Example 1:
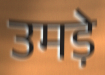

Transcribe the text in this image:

उमड़े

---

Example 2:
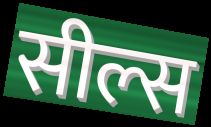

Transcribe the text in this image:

सील्स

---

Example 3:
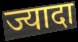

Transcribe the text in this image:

ज्यादा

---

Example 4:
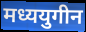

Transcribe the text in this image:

मध्ययुगीन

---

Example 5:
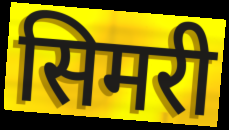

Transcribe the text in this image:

सिमरी